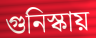
গুনিস্কায়